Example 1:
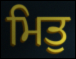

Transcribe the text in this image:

ਮਿਤੁ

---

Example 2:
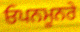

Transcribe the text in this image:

ਓਪਨਮੂਨਰੇ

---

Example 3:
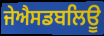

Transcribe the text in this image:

ਜੇਐਸਡਬਲਿਊ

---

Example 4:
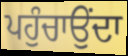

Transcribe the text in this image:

ਪਹੁੰਚਾਉਂਦਾ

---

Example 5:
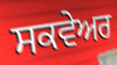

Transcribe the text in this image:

ਸਕਵੇਅਰ